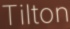
Tilton